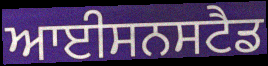
ਆਈਸਨਸਟੈਡ